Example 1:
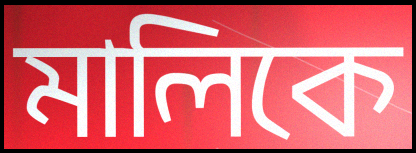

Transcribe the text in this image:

মালিকে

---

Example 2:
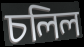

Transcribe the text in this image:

চলিল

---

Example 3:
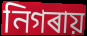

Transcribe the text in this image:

নিগৰায়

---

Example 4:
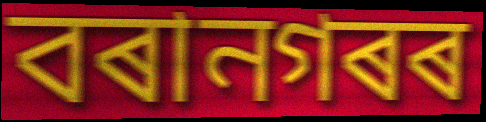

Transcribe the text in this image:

বৰানগৰৰ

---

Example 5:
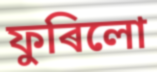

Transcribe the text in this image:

ফুৰিলো